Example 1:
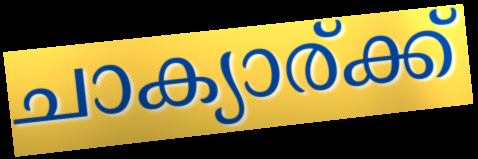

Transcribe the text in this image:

ചാക്യാര്ക്ക്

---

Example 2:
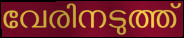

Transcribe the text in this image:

വേരിനടുത്ത്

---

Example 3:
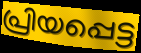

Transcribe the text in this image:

പ്രിയപ്പെട്ട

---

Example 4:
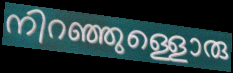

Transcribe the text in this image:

നിറഞ്ഞുള്ളൊരു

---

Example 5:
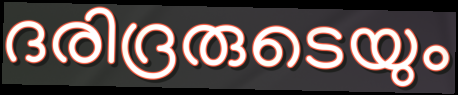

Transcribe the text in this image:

ദരിദ്രരുടെയും